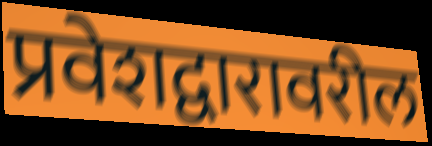
प्रवेशद्वारावरील